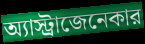
অ্যাস্ট্রাজেনেকার